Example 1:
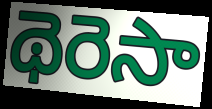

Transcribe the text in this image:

థెరెసా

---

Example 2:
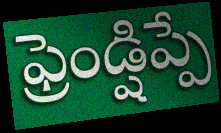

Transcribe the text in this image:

ఫ్రెండ్షిప్పే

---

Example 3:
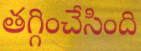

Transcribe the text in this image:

తగ్గించేసింది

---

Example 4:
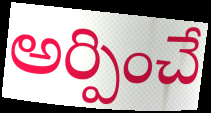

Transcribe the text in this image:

అర్పించే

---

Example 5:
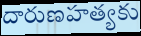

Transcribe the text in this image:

దారుణహత్యకు